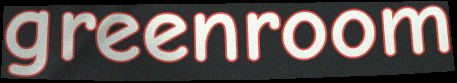
greenroom